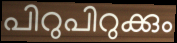
പിറുപിറുക്കും